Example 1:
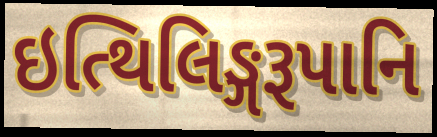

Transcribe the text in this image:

ઇત્થિલિઙ્ગરૂપાનિ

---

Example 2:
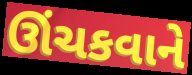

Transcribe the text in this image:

ઊંચકવાને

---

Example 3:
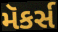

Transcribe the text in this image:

મૅકર્સ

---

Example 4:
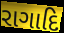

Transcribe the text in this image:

રાગાદિ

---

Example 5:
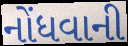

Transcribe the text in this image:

નોંધવાની